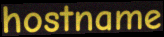
hostname